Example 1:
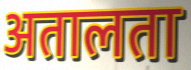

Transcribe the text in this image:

अतालता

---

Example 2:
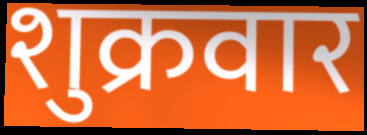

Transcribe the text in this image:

शुक्रवार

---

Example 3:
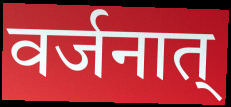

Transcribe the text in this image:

वर्जनात्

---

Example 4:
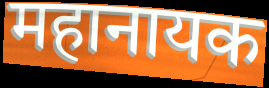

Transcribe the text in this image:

महानायक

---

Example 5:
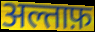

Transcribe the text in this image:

अल्ताफ़